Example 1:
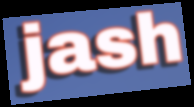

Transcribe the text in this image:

jash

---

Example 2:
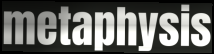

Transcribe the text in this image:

metaphysis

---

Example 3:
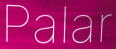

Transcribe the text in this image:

Palar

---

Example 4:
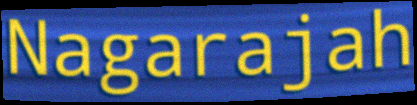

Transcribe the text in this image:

Nagarajah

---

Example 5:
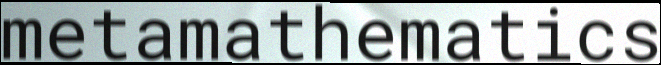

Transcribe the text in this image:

metamathematics